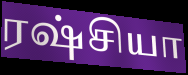
ரஷ்சியா